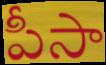
పీసా